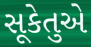
સૂકેતુએ